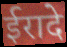
ईरादे